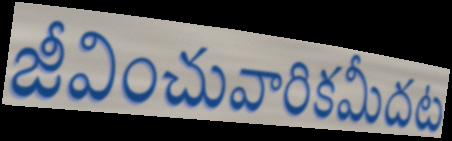
జీవించువారికమీదట